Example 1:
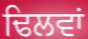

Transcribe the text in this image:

ਢਿਲਵਾਂ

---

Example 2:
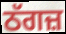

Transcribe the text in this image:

ਠੱਗਜ਼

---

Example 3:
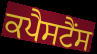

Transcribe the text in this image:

ਕਪੈਸਟੈਂਸ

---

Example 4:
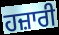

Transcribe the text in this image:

ਹਜ਼ਾਰੀ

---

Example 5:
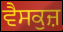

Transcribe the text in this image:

ਵੈਸਕੁਜ਼